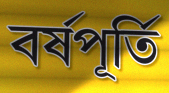
বর্ষপূর্তি